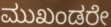
ಮುಖಂಡರೇ